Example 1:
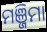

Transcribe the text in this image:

ମଞ୍ଜିମା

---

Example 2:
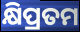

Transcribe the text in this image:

କ୍ଷିପ୍ରତମ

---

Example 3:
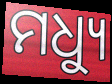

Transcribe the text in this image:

ମଧ୍ୟୁ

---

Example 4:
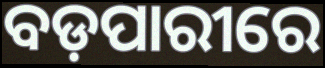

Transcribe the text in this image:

ବଡ଼ପାରୀରେ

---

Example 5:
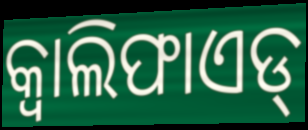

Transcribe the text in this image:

କ୍ୱାଲିଫାଏଡ୍